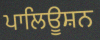
ਪਾਲਿਊਸ਼ਨ